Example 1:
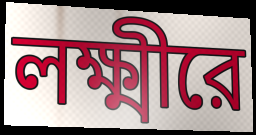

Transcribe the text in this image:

লক্ষ্মীরে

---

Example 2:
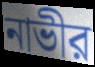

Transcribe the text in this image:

নাভীর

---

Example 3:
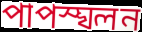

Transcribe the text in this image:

পাপস্খলন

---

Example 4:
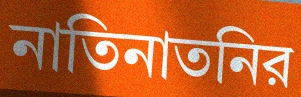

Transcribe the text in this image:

নাতিনাতনির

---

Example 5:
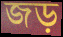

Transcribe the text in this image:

জড়